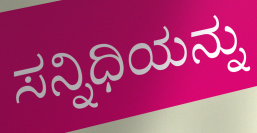
ಸನ್ನಿಧಿಯನ್ನು